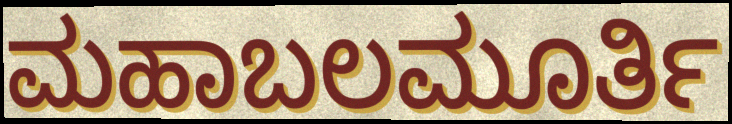
ಮಹಾಬಲಮೂರ್ತಿ